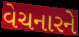
વેચનારને